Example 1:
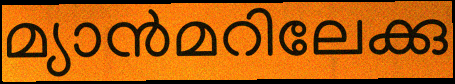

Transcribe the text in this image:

മ്യാൻമറിലേക്കു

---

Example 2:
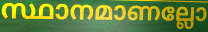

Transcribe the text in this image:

സ്ഥാനമാണല്ലോ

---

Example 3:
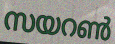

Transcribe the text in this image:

സയറൺ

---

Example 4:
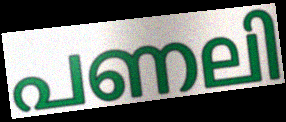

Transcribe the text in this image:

പണലി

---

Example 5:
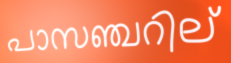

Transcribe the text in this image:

പാസഞ്ചറില്